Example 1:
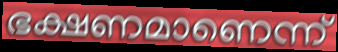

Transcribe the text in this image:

ഭക്ഷണമാണെന്ന്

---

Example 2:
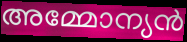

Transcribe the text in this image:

അമ്മോന്യൻ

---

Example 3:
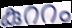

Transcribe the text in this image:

കുററം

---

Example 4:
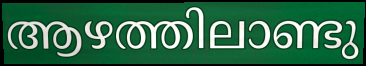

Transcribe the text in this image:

ആഴത്തിലാണ്ടു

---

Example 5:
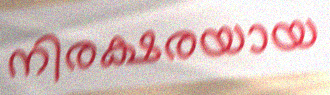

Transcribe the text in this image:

നിരക്ഷരയായ